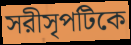
সরীসৃপটিকে